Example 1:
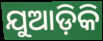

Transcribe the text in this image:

ଯୁଆଡ଼ିକି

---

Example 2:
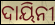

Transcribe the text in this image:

ଦାୟିନୀ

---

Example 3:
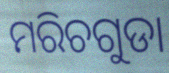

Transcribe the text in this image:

ମରିଚଗୁଡା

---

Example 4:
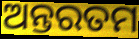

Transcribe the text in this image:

ଅନ୍ତରତମ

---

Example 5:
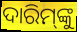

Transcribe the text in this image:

ଦାରିମ୍‍ଙ୍କୁ